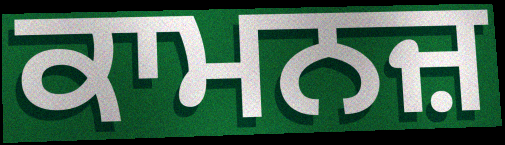
ਕਾਮਨਜ਼